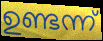
ഉണ്ടന്ന്